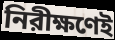
নিরীক্ষণেই